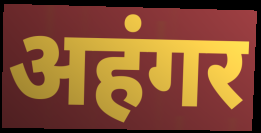
अहंगर